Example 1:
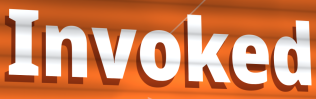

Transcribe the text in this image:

Invoked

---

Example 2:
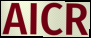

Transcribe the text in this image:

AICR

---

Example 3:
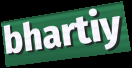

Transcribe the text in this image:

bhartiy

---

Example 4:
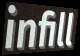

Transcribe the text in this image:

infill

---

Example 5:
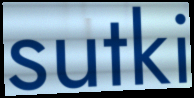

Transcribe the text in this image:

sutki